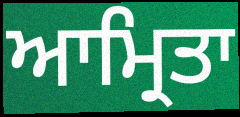
ਆਮ੍ਰਿਤਾ